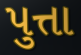
પુત્તા